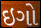
ઇગો